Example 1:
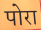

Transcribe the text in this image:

पोरा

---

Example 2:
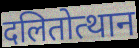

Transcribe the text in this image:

दलितोत्थान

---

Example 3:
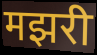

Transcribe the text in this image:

मझरी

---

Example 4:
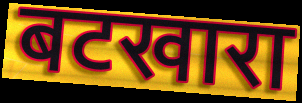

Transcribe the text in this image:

बटखारा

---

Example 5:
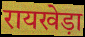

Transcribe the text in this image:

रायखेड़ा